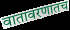
वातावरणातच